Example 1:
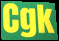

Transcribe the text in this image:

Cgk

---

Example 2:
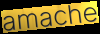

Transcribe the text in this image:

amache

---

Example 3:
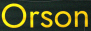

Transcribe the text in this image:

Orson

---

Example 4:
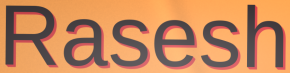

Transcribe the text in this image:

Rasesh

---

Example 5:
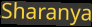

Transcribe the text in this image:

Sharanya